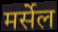
मर्सेल